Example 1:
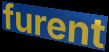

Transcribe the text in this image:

furent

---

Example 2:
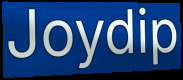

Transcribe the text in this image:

Joydip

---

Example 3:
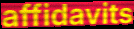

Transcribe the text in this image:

affidavits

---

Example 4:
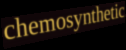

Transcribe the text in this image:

chemosynthetic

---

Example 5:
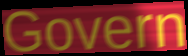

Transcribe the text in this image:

Govern